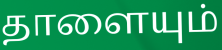
தாளையும்